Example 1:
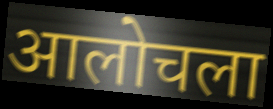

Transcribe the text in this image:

आलोचला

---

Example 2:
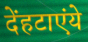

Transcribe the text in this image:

देंहटाएंये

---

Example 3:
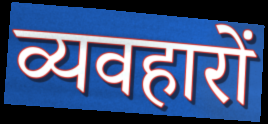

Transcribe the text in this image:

व्यवहारों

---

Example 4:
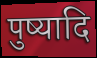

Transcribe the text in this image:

पुष्यादि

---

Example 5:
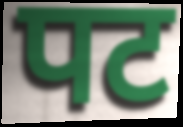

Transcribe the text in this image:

पट